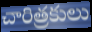
చారిత్రకులు